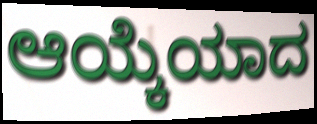
ಆಯ್ಕೆಯಾದ